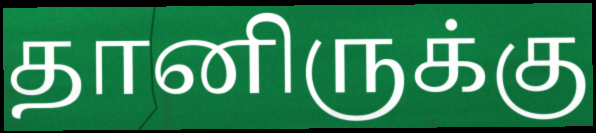
தானிருக்கு